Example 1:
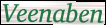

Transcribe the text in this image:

Veenaben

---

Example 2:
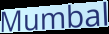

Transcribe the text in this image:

Mumbal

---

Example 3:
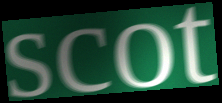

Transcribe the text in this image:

scot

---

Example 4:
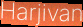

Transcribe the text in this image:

Harjivan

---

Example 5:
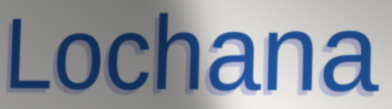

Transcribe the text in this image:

Lochana